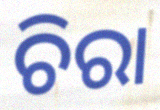
ଚିରା